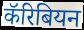
कॅरिबियन